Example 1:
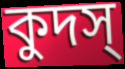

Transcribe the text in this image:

কুদস্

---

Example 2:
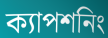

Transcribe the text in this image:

ক্যাপশনিং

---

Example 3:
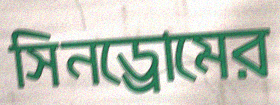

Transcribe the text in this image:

সিনড্রোমের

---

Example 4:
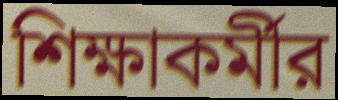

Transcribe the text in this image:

শিক্ষাকর্মীর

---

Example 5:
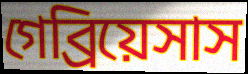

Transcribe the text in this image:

গেব্রিয়েসাস